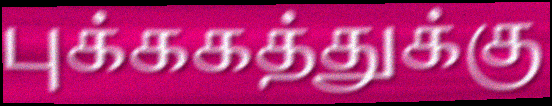
புக்ககத்துக்கு